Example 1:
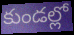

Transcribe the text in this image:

కుండల్లో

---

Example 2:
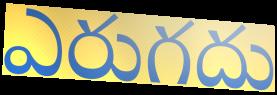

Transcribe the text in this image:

ఎరుగదు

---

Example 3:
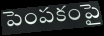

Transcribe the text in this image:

పెంపకంపై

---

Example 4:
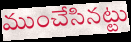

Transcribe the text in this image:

ముంచేసినట్టు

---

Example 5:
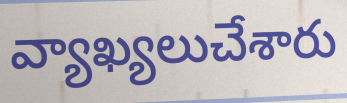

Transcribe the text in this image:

వ్యాఖ్యలుచేశారు